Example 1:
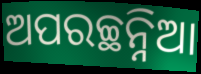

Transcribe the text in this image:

ଅପରଚ୍ଛନ୍ନିଆ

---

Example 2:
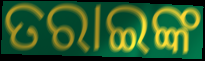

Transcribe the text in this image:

ତରାଇଙ୍କ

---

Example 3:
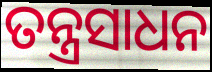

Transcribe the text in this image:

ତନ୍ତ୍ରସାଧନ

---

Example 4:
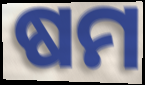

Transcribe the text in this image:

ଷମ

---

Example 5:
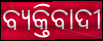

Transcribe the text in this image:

ବ୍ୟକ୍ତିବାଦୀ